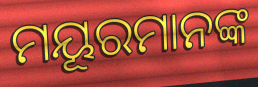
ମୟୂରମାନଙ୍କ